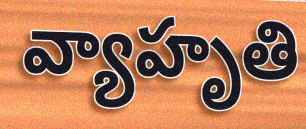
వ్యాహృతి